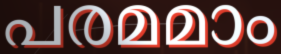
പരമമാം